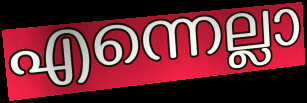
എന്നെല്ലാ